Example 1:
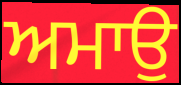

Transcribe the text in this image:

ਅਮਾਉ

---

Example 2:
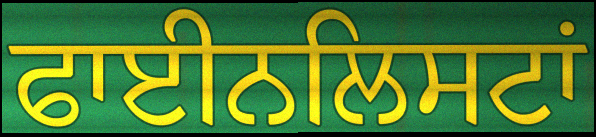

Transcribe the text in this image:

ਫਾਈਨਲਿਸਟਾਂ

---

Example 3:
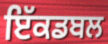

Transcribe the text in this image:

ਇੱਕਡਬਲ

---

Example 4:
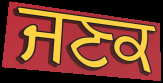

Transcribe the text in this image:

ਜਣਕ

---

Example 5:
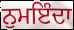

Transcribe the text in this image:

ਨੁਮਇੰਦਾ